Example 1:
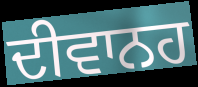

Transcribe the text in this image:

ਦੀਵਾਨਹ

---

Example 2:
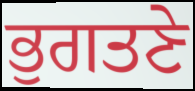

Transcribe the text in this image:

ਭੁਗਤਣੇ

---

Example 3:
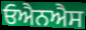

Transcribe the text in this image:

ਓਐਨਐਸ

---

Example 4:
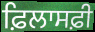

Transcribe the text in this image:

ਫ਼ਿਲਾਸਫ਼ੀ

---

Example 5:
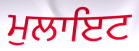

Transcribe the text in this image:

ਮੁਲਾਇਟ